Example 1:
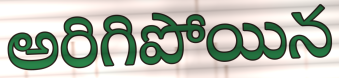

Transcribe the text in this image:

అరిగిపోయిన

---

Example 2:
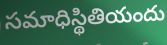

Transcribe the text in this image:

సమాధిస్థితియందు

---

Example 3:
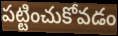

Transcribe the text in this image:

పట్టించుకోవడం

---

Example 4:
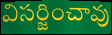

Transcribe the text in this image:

విసర్జించావు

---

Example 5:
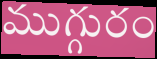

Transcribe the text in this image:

ముగ్గురం